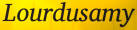
Lourdusamy